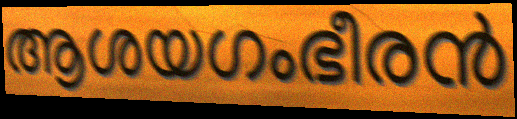
ആശയഗംഭീരൻ